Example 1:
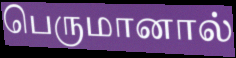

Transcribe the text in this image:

பெருமானால்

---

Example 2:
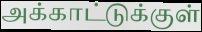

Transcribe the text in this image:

அக்காட்டுக்குள்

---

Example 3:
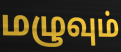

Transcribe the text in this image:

மழுவும்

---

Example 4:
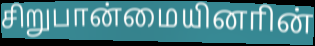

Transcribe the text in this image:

சிறுபான்மையினரின்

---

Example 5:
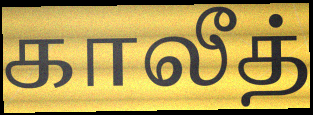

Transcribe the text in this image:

காலீத்